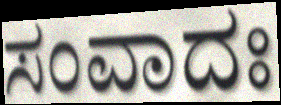
ಸಂವಾದಃ